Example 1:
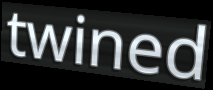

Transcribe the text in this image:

twined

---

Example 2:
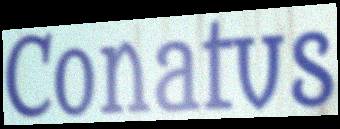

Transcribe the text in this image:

Conatus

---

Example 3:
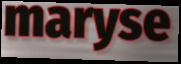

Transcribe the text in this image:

maryse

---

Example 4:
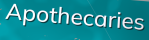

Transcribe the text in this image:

Apothecaries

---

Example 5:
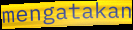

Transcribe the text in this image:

mengatakan